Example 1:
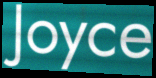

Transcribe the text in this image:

Joyce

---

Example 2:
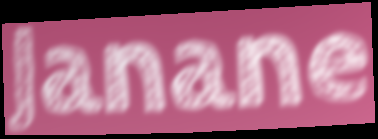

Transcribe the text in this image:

Janane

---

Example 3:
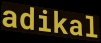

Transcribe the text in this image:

adikal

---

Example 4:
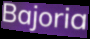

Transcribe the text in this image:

Bajoria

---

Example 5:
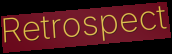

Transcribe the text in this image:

Retrospect